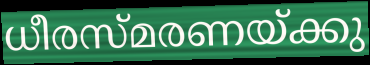
ധീരസ്മരണയ്ക്കു